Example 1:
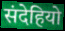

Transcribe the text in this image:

संदेहियो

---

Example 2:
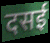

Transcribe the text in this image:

दसई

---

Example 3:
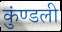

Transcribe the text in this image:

कुंण्डली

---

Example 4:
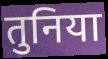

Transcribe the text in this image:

तुनिया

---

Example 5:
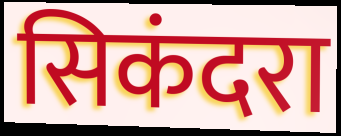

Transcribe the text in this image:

सिकंदरा